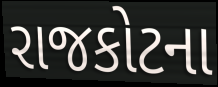
રાજકોટના